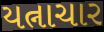
યત્નાચાર